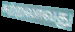
கற்றலாவது